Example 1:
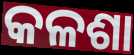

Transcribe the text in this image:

କଳଶା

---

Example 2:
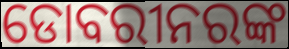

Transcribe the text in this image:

ଡୋବରୀନରଙ୍କ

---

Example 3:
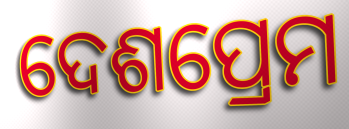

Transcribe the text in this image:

ଦେଶପ୍ରେମ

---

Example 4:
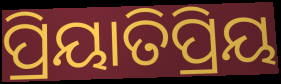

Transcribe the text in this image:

ପ୍ରିୟାତିପ୍ରିୟ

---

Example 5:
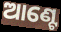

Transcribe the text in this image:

ଆଣ୍ଟେ